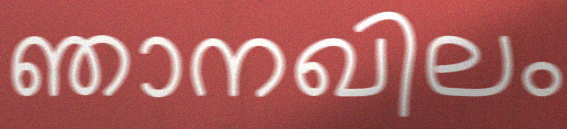
ഞാനഖിലം